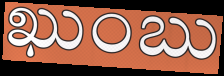
ఖుంబు